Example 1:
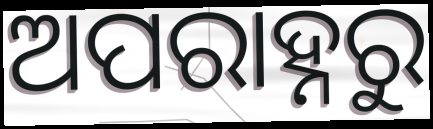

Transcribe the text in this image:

ଅପରାହ୍ନରୁ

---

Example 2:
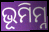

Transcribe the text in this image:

ଭୂମିମ୍ନ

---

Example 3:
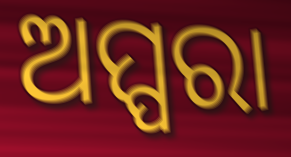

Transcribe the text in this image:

ଅପ୍ପରା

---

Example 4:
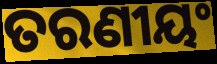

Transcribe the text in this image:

ତରଣୀୟଂ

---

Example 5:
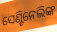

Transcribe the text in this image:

ସେଣ୍ଟିନେଲିଙ୍କ